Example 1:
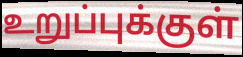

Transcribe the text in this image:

உறுப்புக்குள்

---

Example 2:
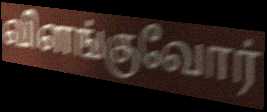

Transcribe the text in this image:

விளங்குவோர்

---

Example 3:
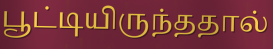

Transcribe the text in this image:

பூட்டியிருந்ததால்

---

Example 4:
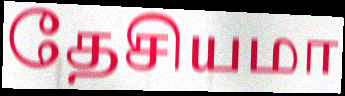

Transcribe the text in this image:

தேசியமா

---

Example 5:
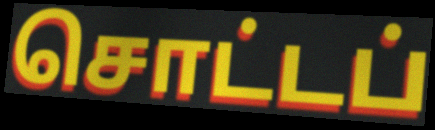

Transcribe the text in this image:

சொட்டப்